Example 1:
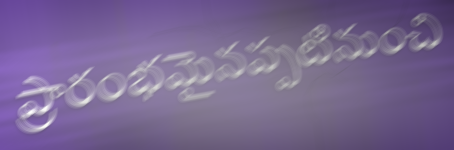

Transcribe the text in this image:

ప్రారంభమైనప్పటినుంచి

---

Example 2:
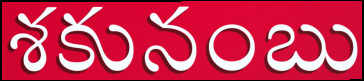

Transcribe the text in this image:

శకునంబు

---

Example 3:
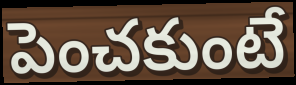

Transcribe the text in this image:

పెంచకుంటే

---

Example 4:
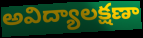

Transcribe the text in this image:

అవిద్యాలక్షణా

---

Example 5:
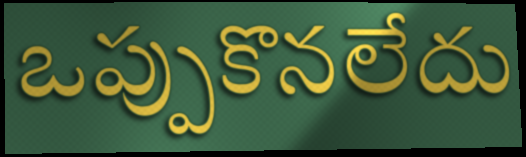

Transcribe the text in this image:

ఒప్పుకొనలేదు